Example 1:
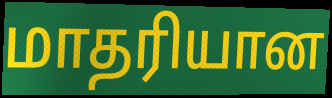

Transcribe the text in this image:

மாதரியான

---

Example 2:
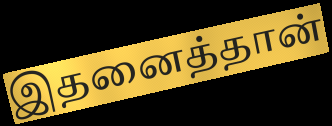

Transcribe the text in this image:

இதனைத்தான்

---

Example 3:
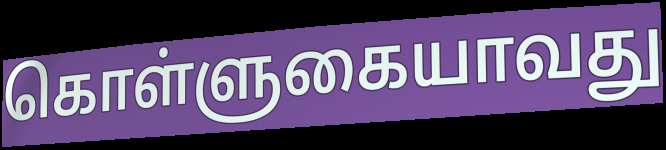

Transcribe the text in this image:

கொள்ளுகையாவது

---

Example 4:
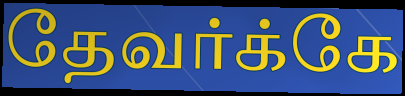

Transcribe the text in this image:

தேவர்க்கே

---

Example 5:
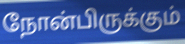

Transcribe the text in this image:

நோன்பிருக்கும்